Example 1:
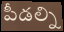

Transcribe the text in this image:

పీడల్ని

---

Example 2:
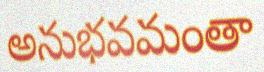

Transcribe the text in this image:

అనుభవమంతా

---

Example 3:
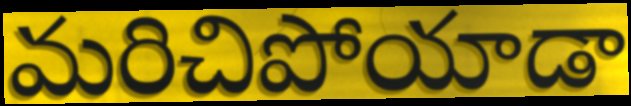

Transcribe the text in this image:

మరిచిపోయాడా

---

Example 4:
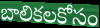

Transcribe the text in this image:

బాలికలకోసం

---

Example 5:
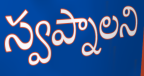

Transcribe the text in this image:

స్వప్నాలని